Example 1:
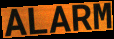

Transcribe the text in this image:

ALARM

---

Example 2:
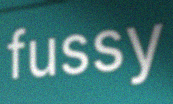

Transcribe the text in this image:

fussy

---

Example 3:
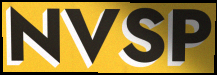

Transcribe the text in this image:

NVSP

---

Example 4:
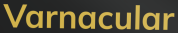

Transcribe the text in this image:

Varnacular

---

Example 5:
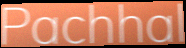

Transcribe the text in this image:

Pachhal